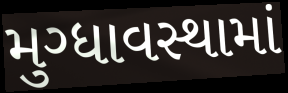
મુગ્ધાવસ્થામાં